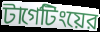
টার্গেটিংয়ের